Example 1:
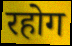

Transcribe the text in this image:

रहोग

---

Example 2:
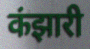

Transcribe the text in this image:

कंझारी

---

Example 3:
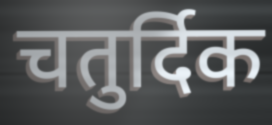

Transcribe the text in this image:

चतुर्दिक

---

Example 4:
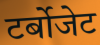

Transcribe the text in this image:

टर्बोजेट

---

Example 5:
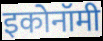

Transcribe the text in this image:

इकोनॉमी